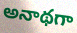
అనాథగా